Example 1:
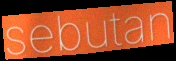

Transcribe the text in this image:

sebutan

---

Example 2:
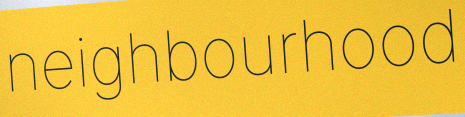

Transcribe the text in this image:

neighbourhood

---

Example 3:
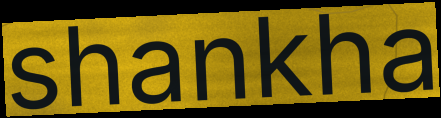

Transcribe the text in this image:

shankha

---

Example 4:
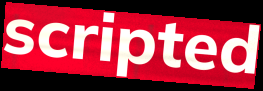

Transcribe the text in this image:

scripted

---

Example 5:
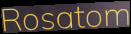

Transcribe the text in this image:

Rosatom